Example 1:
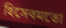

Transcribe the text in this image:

হিসেবমতো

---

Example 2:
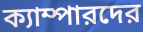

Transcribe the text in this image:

ক্যাম্পারদের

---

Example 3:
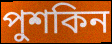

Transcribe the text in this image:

পুশকিন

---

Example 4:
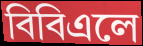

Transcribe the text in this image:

বিবিএলে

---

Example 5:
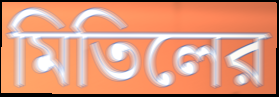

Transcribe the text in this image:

মিতিলের